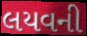
લયવની